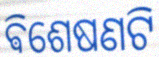
ଵିଶେଷଣଟି